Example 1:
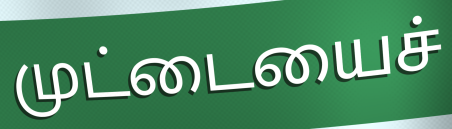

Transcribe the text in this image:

முட்டையைச்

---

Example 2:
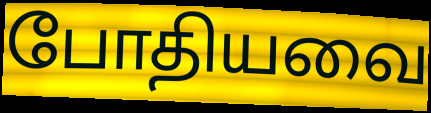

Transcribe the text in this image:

போதியவை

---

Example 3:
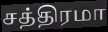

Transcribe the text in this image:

சத்திரமா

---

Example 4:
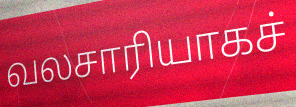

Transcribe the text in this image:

வலசாரியாகச்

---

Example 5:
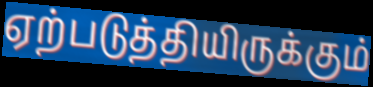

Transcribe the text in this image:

ஏற்படுத்தியிருக்கும்